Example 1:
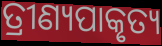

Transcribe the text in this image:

ତ୍ରୀଣ୍ୟପାକୃତ୍ୟ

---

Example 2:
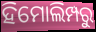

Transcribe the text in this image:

ହିମୋଲିମ୍ପରୁ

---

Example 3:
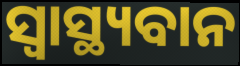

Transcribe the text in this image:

ସ୍ୱାସ୍ଥ୍ୟବାନ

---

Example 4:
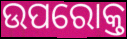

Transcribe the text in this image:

ଉପରୋକ୍ତ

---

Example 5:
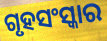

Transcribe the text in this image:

ଗୃହସଂସ୍କାର